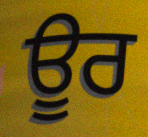
ਊਰ